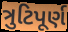
ત્રુટિપૂર્ણ